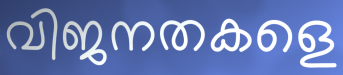
വിജനതകളെ